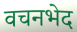
वचनभेद